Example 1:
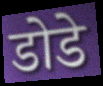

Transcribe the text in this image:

डोडे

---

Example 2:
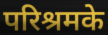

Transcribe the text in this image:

परिश्रमके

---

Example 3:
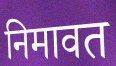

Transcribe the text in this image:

निमावत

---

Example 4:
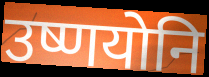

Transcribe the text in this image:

उष्णयोनि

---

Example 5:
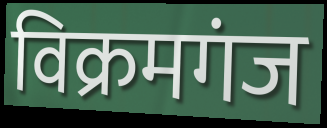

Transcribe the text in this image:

विक्रमगंज